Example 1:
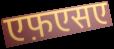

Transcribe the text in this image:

एफ़एसए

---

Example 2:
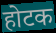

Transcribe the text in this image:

होटक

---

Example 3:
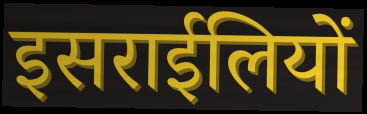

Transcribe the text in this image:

इसराईलियों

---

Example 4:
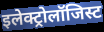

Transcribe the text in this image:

इलेक्ट्रोलॉजिस्ट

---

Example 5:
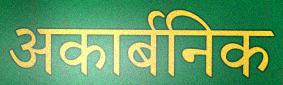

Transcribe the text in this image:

अकार्बनिक